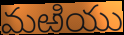
మఱియు